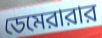
ডেমেরারার